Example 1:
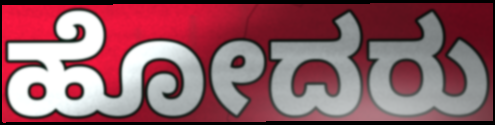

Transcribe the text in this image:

ಹೋದರು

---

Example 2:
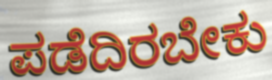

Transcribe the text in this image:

ಪಡೆದಿರಬೇಕು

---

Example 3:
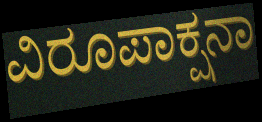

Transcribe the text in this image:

ವಿರೂಪಾಕ್ಷನಾ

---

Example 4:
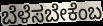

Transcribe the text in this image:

ಬೆಳೆಸಬೇಕೆಂಬ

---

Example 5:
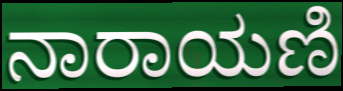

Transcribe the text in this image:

ನಾರಾಯಣಿ